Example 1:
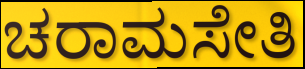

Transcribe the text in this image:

ಚರಾಮಸೇತಿ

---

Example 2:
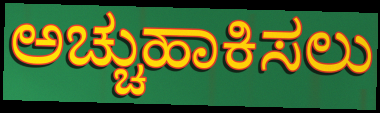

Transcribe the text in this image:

ಅಚ್ಚುಹಾಕಿಸಲು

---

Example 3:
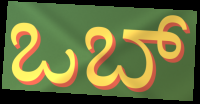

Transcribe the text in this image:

ಒಬ್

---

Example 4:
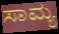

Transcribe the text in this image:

ಸಾಮ್ಯ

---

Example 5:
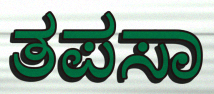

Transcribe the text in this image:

ತಪಸಾ